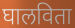
घालविता